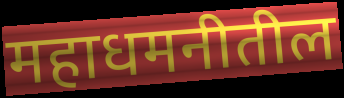
महाधमनीतील